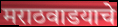
मराठवाडयाचे